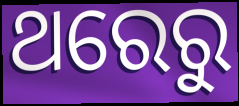
ଥରେରୁ